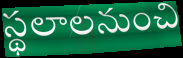
స్థలాలనుంచి